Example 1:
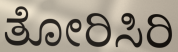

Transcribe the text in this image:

ತೋರಿಸಿರಿ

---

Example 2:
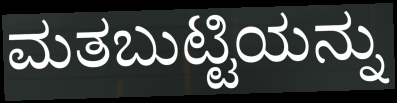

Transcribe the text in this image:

ಮತಬುಟ್ಟಿಯನ್ನು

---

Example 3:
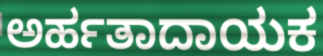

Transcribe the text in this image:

ಅರ್ಹತಾದಾಯಕ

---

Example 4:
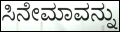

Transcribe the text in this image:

ಸಿನೇಮಾವನ್ನು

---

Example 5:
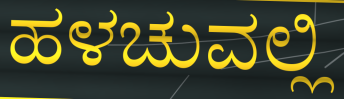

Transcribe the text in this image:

ಹಳಚುವಲ್ಲಿ